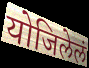
योजिलेलं